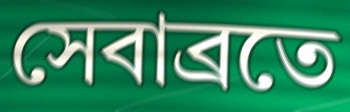
সেবাব্রতে